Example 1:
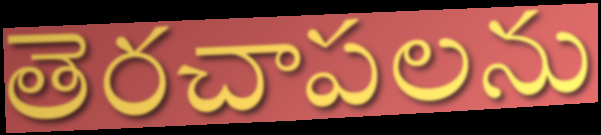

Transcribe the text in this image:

తెరచాపలను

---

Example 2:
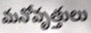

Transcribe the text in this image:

మనోవృత్తులు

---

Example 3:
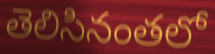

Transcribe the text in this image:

తెలిసినంతలో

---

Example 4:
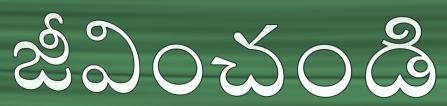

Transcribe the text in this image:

జీవించండి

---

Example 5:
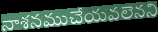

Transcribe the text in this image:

నాశనముచేయవలెనని